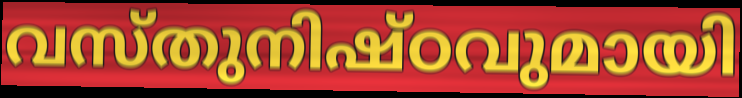
വസ്തുനിഷ്ഠവുമായി